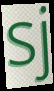
sj